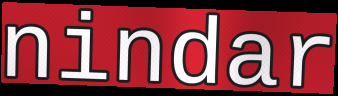
nindar